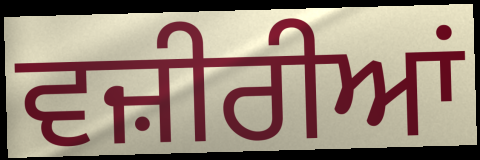
ਵਜ਼ੀਰੀਆਂ